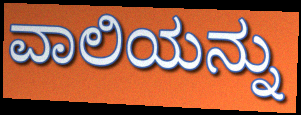
ವಾಲಿಯನ್ನು